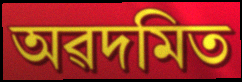
অৱদমিত